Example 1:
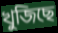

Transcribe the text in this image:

খুজিছে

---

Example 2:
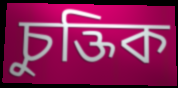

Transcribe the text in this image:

চুক্তিক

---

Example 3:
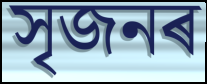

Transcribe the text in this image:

সৃজনৰ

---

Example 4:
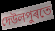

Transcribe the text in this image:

দেউলপুৰতে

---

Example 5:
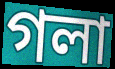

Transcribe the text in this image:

গলা